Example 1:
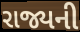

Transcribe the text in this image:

રાજ્યની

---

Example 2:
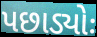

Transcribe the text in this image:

પછાડ્યોઃ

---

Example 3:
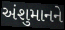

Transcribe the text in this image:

અંશુમાનને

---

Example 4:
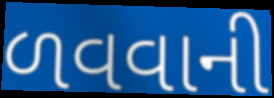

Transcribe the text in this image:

ળવવાની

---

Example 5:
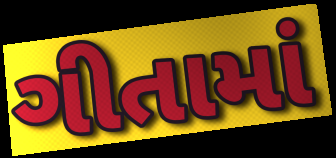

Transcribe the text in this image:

ગીતામાં